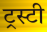
ट्रस्टी